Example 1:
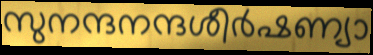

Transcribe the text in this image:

സുനന്ദനന്ദശീർഷണ്യാ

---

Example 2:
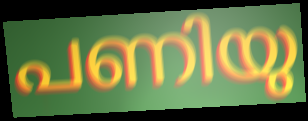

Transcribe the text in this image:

പണിയു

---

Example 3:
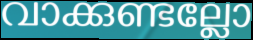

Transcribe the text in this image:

വാക്കുണ്ടല്ലോ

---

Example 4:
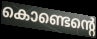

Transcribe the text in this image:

കൊണ്ടെന്റെ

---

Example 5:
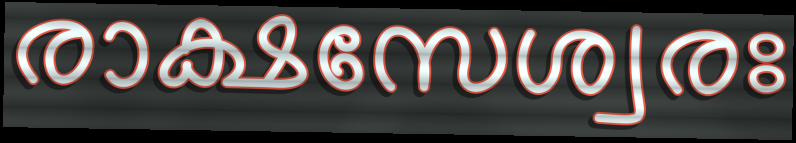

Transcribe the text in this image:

രാക്ഷസേശ്വരഃ